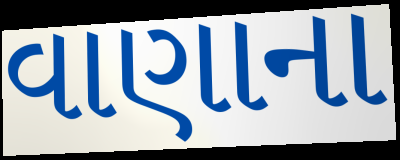
વાણાના